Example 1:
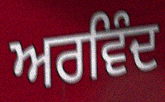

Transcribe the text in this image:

ਅਰਵਿੰਦ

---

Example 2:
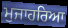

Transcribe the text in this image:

ਮੁਜਾਹਰਿਆ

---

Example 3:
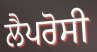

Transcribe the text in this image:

ਲੈਪਰੋਸੀ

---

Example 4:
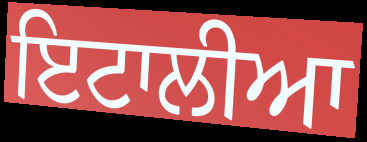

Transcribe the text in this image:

ਇਟਾਲੀਆ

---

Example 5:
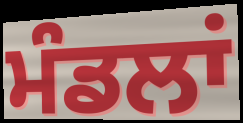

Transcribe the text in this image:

ਮੰਡਲਾਂ